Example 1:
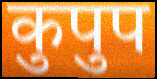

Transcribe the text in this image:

कुपुप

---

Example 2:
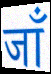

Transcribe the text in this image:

जाँ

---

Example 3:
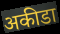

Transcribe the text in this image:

अकीडा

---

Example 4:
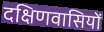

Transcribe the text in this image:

दक्षिणवासियों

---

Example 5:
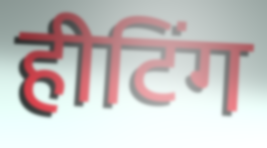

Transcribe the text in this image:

हीटिंग